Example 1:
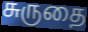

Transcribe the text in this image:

சுருதை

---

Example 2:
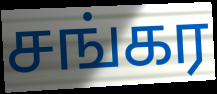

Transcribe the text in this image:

சங்கர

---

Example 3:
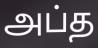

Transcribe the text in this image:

அப்த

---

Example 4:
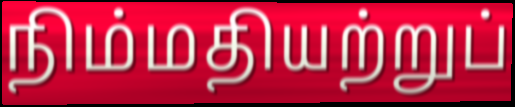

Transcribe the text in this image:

நிம்மதியற்றுப்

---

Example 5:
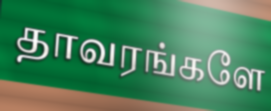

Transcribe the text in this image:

தாவரங்களே